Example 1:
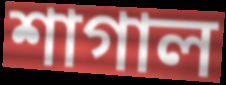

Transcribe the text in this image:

শাগাল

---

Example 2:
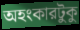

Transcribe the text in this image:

অহংকারটুকু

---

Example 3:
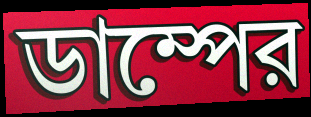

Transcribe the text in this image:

ডাম্পের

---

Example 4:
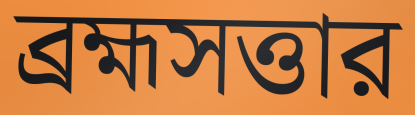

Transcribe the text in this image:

ব্রহ্মসত্তার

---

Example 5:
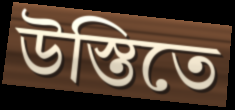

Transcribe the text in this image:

উস্তিতে